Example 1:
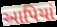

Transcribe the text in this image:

આપિયાં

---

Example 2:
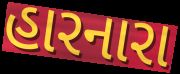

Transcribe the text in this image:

હારનારા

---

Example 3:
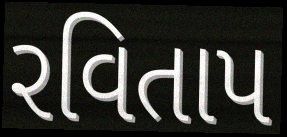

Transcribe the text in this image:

રવિતાપ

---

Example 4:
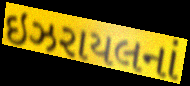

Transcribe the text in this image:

ઇઝરાયલનાં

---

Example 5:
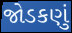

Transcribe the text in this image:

જોડકણું